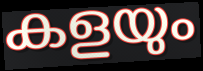
കളയും